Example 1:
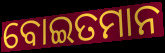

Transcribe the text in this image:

ବୋଇତମାନ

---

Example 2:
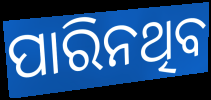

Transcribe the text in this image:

ପାରିନଥିବ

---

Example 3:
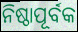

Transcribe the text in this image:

ନିଷ୍ଠାପୂର୍ବକ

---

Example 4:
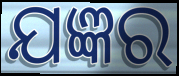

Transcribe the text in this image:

ଯଜ୍ଞର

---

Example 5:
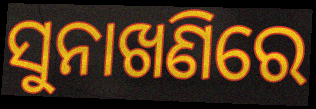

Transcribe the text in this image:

ସୁନାଖଣିରେ